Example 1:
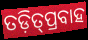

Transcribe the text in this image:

ତଡ଼ିତ୍‍ପ୍ରବାହ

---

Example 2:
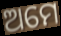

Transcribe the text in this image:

ଅମେ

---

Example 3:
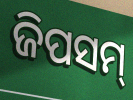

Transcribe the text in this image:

ଜିପସମ୍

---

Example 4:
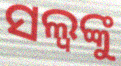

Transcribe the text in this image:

ସଲ୍ୱଙ୍କୁ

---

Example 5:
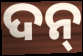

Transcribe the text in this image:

ଦନ୍